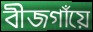
বীজগাঁয়ে